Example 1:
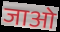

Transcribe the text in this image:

जाओ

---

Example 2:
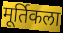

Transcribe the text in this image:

मूर्तिकला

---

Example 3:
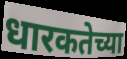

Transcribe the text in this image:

धारकतेच्या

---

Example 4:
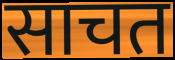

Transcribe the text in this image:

साचत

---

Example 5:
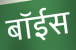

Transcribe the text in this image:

बॉईस